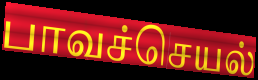
பாவச்செயல்